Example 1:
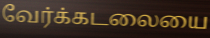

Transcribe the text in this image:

வேர்க்கடலையை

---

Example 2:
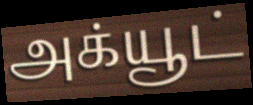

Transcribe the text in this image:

அக்யூட்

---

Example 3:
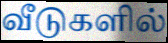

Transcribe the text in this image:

வீடுகளில்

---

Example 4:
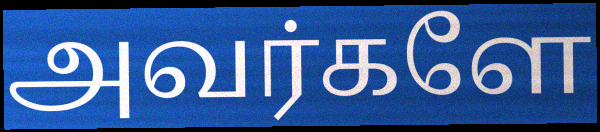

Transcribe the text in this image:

அவர்களே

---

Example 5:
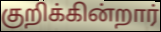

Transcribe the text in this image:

குறிக்கின்றார்